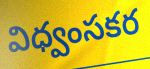
విధ్వంసకర